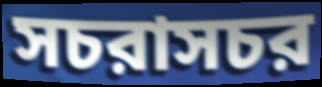
সচরাসচর